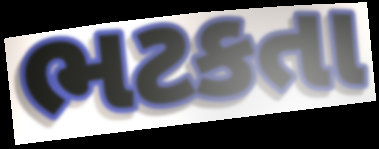
ભટકતા